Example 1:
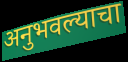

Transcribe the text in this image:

अनुभवल्याचा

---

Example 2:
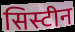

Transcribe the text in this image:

सिस्टीन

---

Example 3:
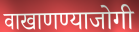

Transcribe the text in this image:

वाखाणण्याजोगी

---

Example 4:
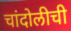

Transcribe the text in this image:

चांदोलीची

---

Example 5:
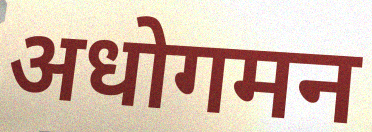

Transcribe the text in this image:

अधोगमन